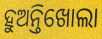
ହୁଅନ୍ତିଖୋଲା